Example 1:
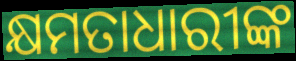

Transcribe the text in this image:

କ୍ଷମତାଧାରୀଙ୍କ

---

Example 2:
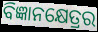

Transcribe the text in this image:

ବିଜ୍ଞାନକ୍ଷେତ୍ରର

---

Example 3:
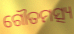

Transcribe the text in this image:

ଗୌତମତ୍ସ୍ୟ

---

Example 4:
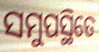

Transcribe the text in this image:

ସମୁପସ୍ଥିତେ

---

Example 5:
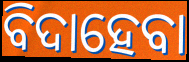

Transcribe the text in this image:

ବିଦାହେବା